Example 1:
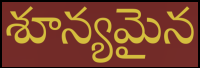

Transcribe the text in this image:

శూన్యమైన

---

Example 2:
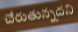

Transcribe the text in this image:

చేరుతున్నదని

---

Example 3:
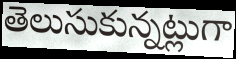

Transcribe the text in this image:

తెలుసుకున్నట్లుగా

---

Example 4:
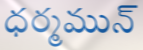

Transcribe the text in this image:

ధర్మమున్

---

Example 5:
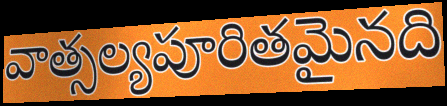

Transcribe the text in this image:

వాత్సల్యపూరితమైనది